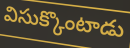
విసుక్కొంటాడు